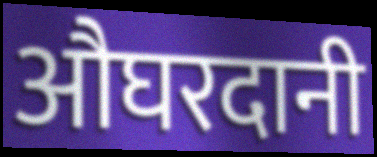
औघरदानी